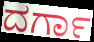
ದರ್ಗಾ